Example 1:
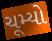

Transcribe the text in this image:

ચૂમ્યો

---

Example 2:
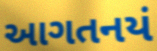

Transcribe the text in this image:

આગતનયં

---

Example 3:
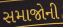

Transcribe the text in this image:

સમાજોની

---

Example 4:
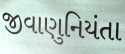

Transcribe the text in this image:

જીવાણુનિયંતા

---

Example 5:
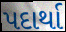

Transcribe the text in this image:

પદાર્થા